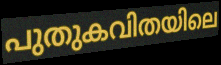
പുതുകവിതയിലെ